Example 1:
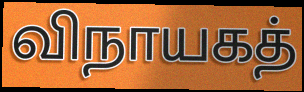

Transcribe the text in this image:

விநாயகத்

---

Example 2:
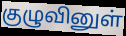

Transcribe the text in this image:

குழுவினுள்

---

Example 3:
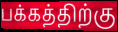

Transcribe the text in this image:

பக்கத்திற்கு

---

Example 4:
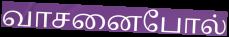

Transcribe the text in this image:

வாசனைபோல்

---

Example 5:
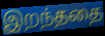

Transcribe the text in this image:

இறந்ததை